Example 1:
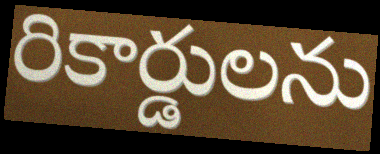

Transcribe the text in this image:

రికార్డులను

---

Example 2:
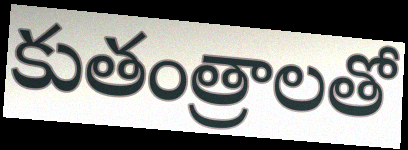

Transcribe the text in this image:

కుతంత్రాలతో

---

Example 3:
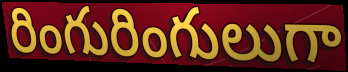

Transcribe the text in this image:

రింగురింగులుగా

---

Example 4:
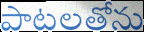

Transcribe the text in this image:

పాటలతోను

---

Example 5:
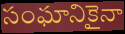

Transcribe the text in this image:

సంఘానికైనా